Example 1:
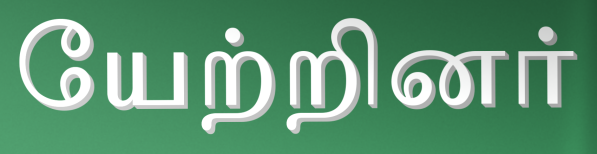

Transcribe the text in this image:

யேற்றினர்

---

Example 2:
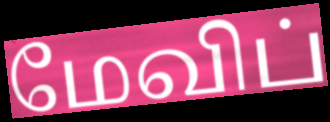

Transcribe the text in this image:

மேவிப்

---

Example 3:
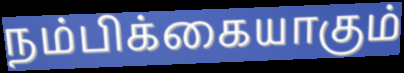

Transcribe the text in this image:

நம்பிக்கையாகும்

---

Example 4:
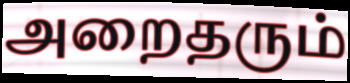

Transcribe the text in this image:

அறைதரும்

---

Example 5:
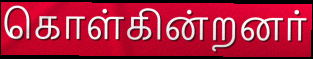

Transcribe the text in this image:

கொள்கின்றனர்